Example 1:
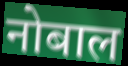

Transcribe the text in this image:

नोबाल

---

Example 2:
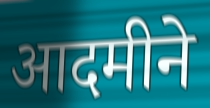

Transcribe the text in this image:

आदमीने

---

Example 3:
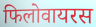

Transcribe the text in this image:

फिलोवायरस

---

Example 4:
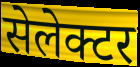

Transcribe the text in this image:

सेलेक्टर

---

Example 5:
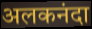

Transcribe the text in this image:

अलकनंदा